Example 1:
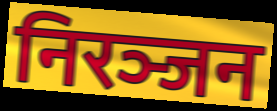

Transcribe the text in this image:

निरञ्जन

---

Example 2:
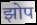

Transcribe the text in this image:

झोप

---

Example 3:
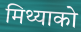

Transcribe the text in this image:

मिथ्याको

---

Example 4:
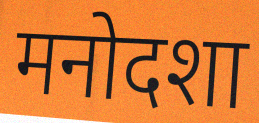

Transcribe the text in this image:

मनोदशा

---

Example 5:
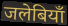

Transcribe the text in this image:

जलेबियाँ